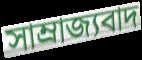
সাম্ৰাজ্যবাদ